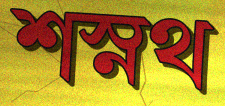
শস্নথ